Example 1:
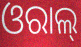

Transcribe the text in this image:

ଓରାଲ୍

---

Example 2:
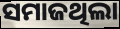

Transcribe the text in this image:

ସମାଜଥିଲା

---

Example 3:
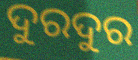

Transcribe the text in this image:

ଦୁରଦୁର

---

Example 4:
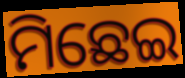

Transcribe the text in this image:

ମିଛେଇ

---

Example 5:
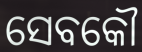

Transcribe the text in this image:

ସେବକୌ